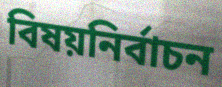
বিষয়নির্বাচন